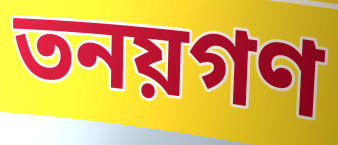
তনয়গণ